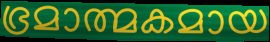
ഭ്രമാത്മകമായ